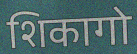
शिकागो